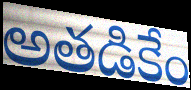
అతడికేం